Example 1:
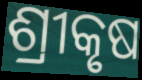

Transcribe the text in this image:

ଶ୍ରୀକୃଷ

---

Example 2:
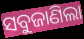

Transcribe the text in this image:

ସବୁଜାଣିଲା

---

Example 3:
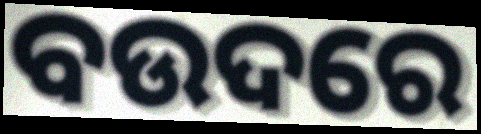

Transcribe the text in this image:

ବଉଦରେ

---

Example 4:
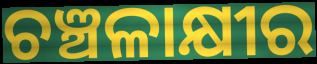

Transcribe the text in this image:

ଚଞ୍ଚଳାକ୍ଷୀର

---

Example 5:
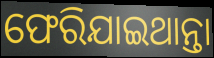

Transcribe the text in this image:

ଫେରିଯାଇଥାନ୍ତା